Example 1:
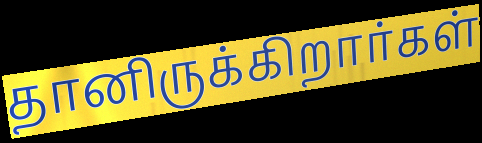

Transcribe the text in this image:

தானிருக்கிறார்கள்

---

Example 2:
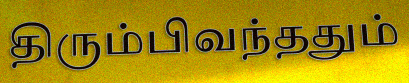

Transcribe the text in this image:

திரும்பிவந்ததும்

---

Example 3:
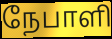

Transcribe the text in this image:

நேபாளி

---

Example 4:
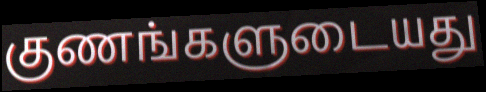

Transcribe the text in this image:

குணங்களுடையது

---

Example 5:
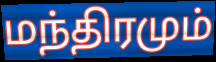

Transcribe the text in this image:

மந்திரமும்